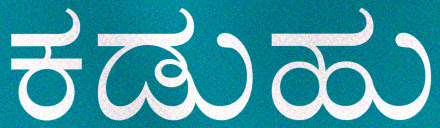
ಕಡುಹು